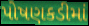
પોષણકડીમાં